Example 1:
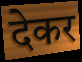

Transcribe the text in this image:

देकर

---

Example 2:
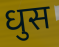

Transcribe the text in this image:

धुस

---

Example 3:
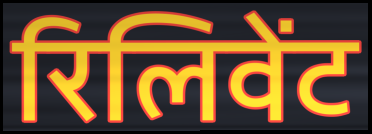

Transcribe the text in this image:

रिलिवेंट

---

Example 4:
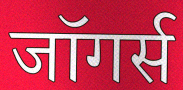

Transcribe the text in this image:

जॉगर्स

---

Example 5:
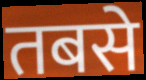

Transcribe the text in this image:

तबसे